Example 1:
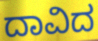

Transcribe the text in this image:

ದಾವಿದ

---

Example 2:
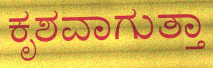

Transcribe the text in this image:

ಕೃಶವಾಗುತ್ತಾ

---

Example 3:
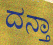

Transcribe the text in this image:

ದನ್ತಾ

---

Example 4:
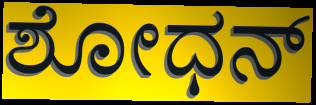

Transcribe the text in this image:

ಶೋಧನ್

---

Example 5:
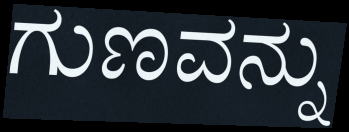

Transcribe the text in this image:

ಗುಣವನ್ನು